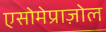
एसोमेप्राज़ोल